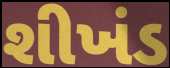
શીખંડ